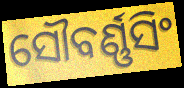
ସୌବର୍ଣ୍ଣସିଂ